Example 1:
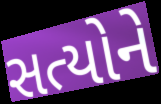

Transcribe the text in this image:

સત્યોને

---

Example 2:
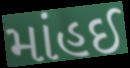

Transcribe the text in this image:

માંહઈ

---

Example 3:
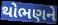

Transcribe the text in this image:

થોભણને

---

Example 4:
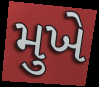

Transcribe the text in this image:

મુખે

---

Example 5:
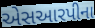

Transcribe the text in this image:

એસઆરપીના